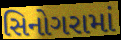
સિનોગરામાં